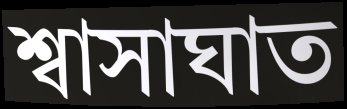
শ্বাসাঘাত